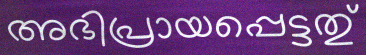
അഭിപ്രായപ്പെട്ടതു്